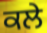
ਕਲੇ